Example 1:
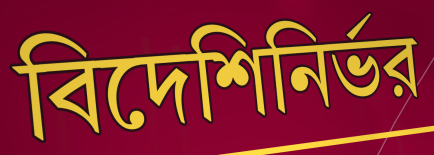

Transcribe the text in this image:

বিদেশিনির্ভর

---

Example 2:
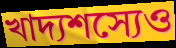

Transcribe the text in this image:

খাদ্যশস্যেও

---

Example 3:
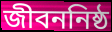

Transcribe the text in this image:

জীবননিষ্ঠ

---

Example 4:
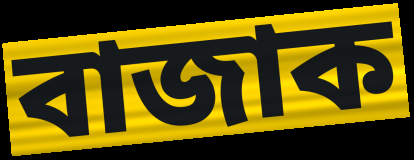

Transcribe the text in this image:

বাজাক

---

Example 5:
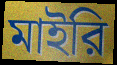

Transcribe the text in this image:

মাইরি